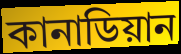
কানাডিয়ান